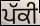
ਪੱਕੀ